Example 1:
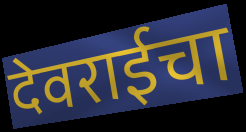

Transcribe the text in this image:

देवराईचा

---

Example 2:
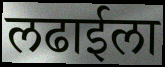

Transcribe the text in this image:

लढाईला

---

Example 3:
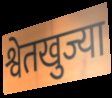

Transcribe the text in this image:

श्वेतखुज्या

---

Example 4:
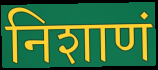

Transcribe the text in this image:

निशाणं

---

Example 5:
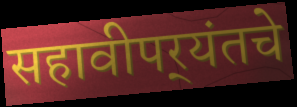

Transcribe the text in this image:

सहावीपर्यंतचे